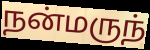
நன்மருந்